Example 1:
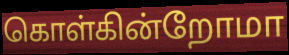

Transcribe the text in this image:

கொள்கின்றோமா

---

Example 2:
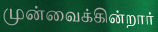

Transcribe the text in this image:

முன்வைக்கின்றார்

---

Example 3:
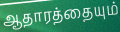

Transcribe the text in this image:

ஆதாரத்தையும்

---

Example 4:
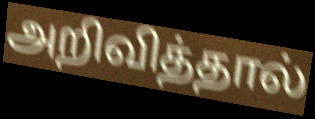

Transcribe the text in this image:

அறிவித்தால்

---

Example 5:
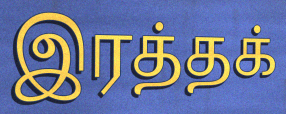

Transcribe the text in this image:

இரத்தக்